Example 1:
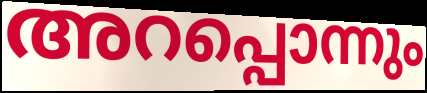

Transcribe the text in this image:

അറപ്പൊന്നും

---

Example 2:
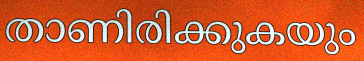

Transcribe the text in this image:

താണിരിക്കുകയും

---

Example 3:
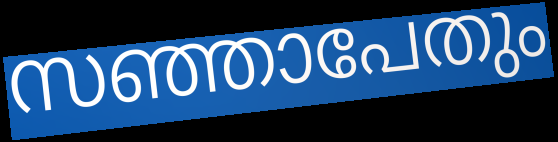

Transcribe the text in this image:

സഞ്ഞാപേതും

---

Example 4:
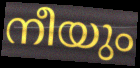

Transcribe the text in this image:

നീയും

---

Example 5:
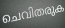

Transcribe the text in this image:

ചെവിതരുക